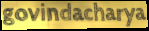
govindacharya